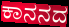
ಕಾನನದ